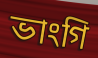
ভাংগি